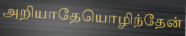
அறியாதேயொழிந்தேன்